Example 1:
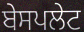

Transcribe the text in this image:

ਬੇਸਪਲੇਟ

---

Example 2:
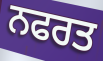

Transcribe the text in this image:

ਨਫਰਤ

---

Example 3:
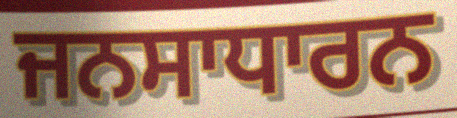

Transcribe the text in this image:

ਜਨਸਾਧਾਰਨ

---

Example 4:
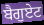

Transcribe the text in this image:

ਬੈਗੁਏਟ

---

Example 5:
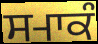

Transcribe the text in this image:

ਸ੍ਮਾਕੰ